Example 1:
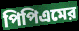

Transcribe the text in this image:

পিপিএমের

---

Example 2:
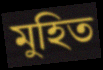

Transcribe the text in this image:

মুহিত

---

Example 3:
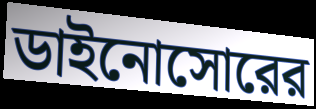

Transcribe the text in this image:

ডাইনোসোরের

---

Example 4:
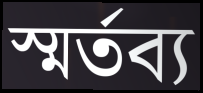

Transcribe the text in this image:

স্মর্তব্য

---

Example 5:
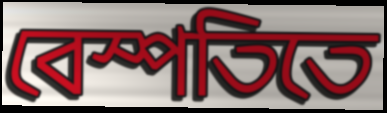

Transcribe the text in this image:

বেস্পতিতে